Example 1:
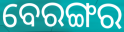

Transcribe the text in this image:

ବେରଙ୍ଗର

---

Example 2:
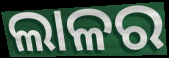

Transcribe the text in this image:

ଲାଳର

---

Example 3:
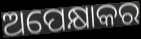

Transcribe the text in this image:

ଅପେକ୍ଷାକର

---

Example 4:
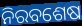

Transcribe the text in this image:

ନିରବଶେଷ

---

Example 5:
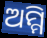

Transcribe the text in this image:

ଅମ୍ମି